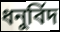
ধনুৰ্বিদ